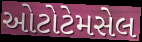
ઓટોટેમસેલ